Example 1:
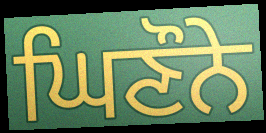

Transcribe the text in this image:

ਘਿਣੌਨੇ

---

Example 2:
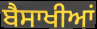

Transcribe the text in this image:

ਬੈਸਾਖੀਆਂ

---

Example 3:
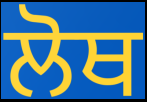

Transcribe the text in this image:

ਲੋਥ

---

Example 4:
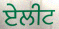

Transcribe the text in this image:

ਏਲੀਟ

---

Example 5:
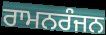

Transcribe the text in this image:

ਰਾਮਨਰੰਜਨ